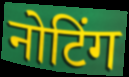
नोटिंग